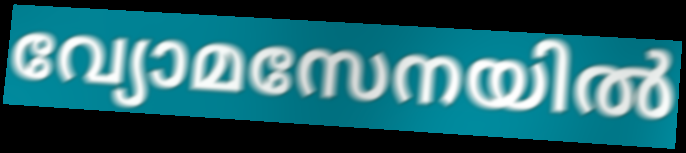
വ്യോമസേനയിൽ